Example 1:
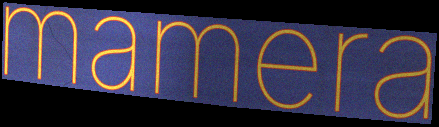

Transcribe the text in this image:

mamera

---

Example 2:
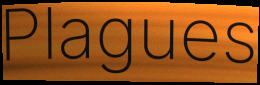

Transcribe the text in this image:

Plagues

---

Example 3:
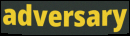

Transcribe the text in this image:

adversary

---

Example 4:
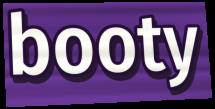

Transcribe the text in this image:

booty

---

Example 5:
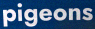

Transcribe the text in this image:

pigeons